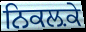
ਨਿਕਲ਼ਕੇ